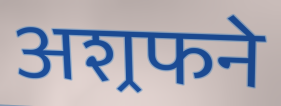
अश्रफने